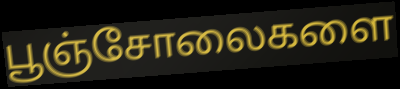
பூஞ்சோலைகளை